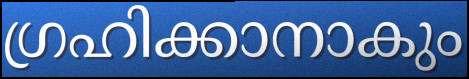
ഗ്രഹിക്കാനാകും